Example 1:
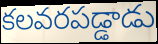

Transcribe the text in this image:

కలవరపడ్డాడు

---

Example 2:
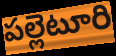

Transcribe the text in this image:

పల్లెటూరి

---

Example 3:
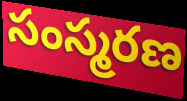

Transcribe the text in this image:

సంస్మరణ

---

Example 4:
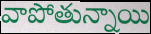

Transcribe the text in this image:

వాపోతున్నాయి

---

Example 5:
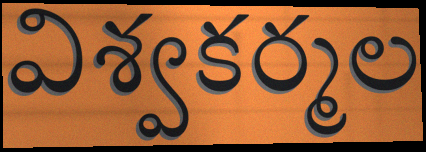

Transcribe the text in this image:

విశ్వకర్మల